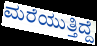
ಮರೆಯುತ್ತಿದ್ದೆ